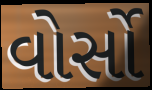
વોર્સો